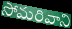
సోమరివాని